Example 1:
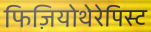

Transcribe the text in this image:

फिज़ियोथेरेपिस्ट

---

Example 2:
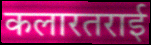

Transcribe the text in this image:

कलारतराई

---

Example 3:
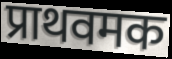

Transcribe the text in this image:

प्राथवमक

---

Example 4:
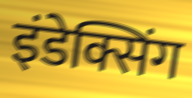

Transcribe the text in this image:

इंडेक्सिंग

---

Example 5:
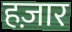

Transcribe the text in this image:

हज़ार